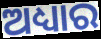
ଅଧ୍ୟାର